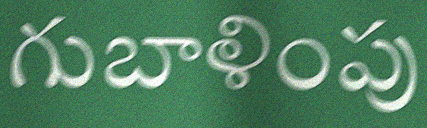
గుబాళింపు